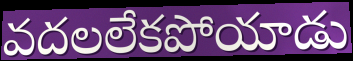
వదలలేకపోయాడు